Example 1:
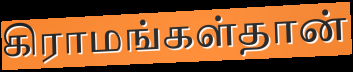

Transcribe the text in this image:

கிராமங்கள்தான்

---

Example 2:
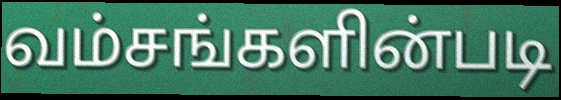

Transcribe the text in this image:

வம்சங்களின்படி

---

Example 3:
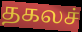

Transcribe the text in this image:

தகலச்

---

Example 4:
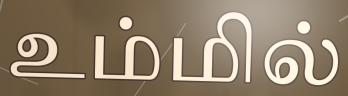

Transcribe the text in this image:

உம்மில்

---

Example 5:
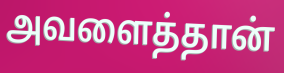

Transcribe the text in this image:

அவளைத்தான்